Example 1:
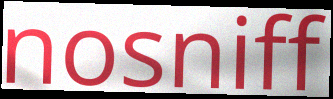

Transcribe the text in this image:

nosniff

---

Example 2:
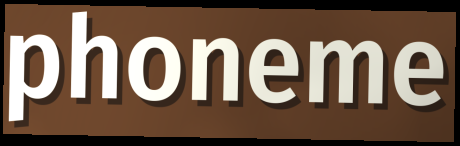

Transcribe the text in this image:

phoneme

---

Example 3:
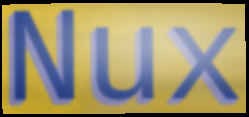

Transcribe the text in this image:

Nux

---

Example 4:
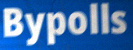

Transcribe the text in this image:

Bypolls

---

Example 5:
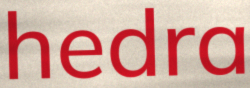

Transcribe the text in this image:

hedra